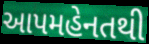
આપમહેનતથી